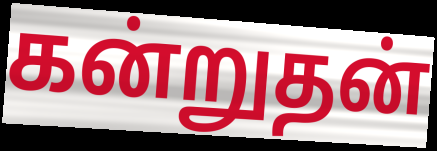
கன்றுதன்